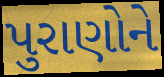
પુરાણોને